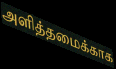
அளித்தமைக்காக